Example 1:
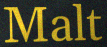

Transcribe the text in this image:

Malt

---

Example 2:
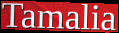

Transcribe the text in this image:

Tamalia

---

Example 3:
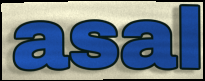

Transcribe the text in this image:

asal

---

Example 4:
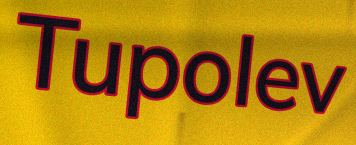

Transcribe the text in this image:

Tupolev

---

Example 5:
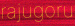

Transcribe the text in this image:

rajugoru